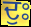
ਦੁਃ